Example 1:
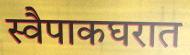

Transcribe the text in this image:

स्वैपाकघरात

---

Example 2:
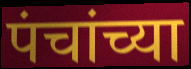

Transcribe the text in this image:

पंचांच्या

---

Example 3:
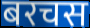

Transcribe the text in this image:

बरचस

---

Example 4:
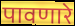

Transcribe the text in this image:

पावणारे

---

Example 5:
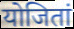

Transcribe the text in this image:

योजितां